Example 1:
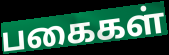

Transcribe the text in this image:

பகைகள்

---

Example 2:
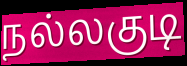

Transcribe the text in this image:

நல்லகுடி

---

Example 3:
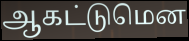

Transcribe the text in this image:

ஆகட்டுமென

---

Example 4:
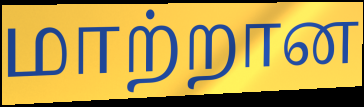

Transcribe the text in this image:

மாற்றான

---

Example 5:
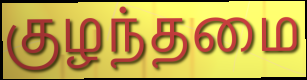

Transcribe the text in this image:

குழந்தமை